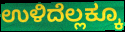
ಉಳಿದೆಲ್ಲಕ್ಕೂ